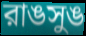
রাঙসুঙ